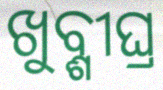
ଖୁବ୍ଶୀଘ୍ର